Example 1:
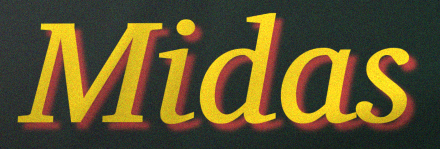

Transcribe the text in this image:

Midas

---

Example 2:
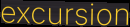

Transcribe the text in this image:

excursion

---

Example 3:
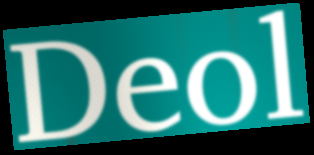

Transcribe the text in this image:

Deol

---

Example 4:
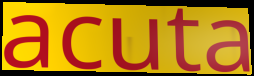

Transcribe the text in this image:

acuta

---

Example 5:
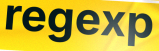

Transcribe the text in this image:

regexp